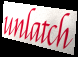
unlatch